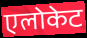
एलोकेट